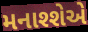
મનાશ્શેએ